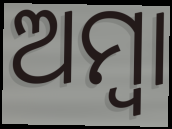
ଅମ୍ବା